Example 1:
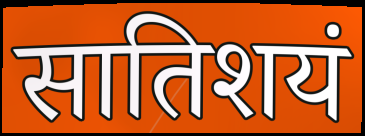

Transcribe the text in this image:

सातिशयं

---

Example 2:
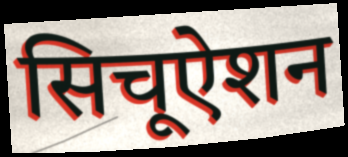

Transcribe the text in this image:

सिचूऐशन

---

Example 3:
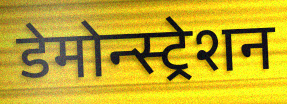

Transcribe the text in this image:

डेमोन्स्ट्रेशन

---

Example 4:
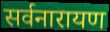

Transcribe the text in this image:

सर्वनारायण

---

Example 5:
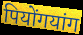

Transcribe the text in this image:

पियोंगयांग